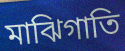
মাঝিগাতি